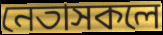
নেতাসকলে